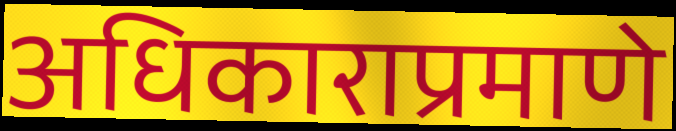
अधिकाराप्रमाणे